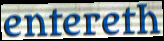
entereth